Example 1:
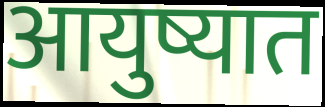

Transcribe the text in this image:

आयुष्यात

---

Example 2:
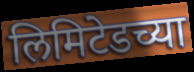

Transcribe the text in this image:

लिमिटेडच्या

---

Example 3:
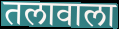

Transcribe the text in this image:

तलावाला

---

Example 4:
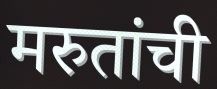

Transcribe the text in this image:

मरुतांची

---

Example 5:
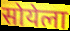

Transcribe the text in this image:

सोयेला